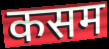
कसम